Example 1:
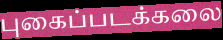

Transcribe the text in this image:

புகைப்படக்கலை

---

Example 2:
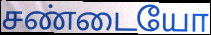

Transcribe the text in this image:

சண்டையோ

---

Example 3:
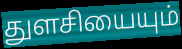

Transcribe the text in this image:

துளசியையும்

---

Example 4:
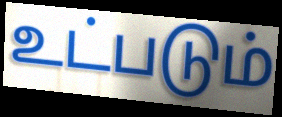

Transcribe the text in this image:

உட்படும்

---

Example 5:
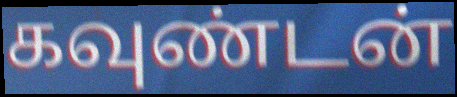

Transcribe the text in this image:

கவுண்டன்